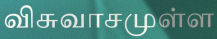
விசுவாசமுள்ள